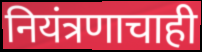
नियंत्रणाचाही